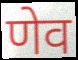
णेव